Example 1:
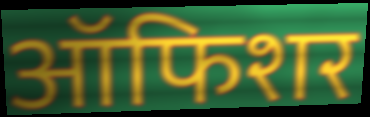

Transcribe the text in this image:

ऑफिशर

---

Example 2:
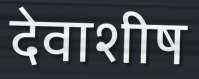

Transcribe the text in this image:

देवाशीष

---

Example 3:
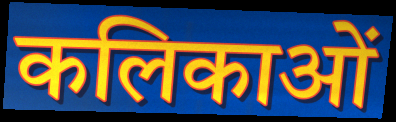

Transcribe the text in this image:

कलिकाओं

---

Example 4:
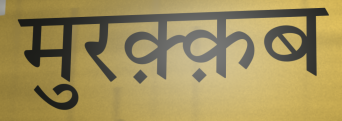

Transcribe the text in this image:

मुरक़्क़ब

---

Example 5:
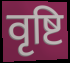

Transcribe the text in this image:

वृष्टि